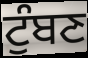
ਟੁੰਬਣ